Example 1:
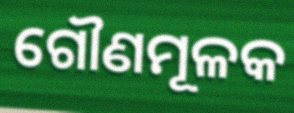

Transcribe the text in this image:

ଗୌଣମୂଳକ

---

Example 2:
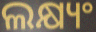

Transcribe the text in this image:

ଲକ୍ଷ୍ୟଂ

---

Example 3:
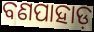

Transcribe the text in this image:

ବଣପାହାଡ଼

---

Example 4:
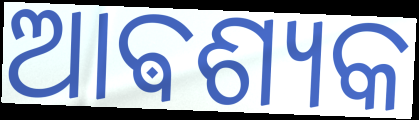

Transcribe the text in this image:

ଆଵଶ୍ୟକ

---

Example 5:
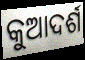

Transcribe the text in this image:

କୁଆଦର୍ଶ